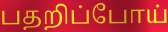
பதறிப்போய்